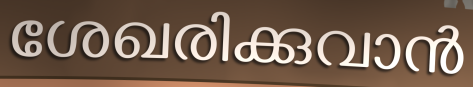
ശേഖരിക്കുവാൻ